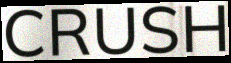
CRUSH